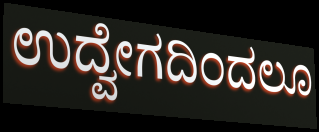
ಉದ್ವೇಗದಿಂದಲೂ